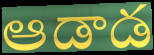
ఆడాడ